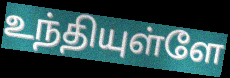
உந்தியுள்ளே